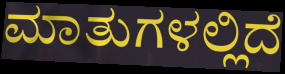
ಮಾತುಗಳಲ್ಲಿದೆ